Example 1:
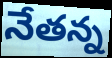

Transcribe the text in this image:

నేతన్న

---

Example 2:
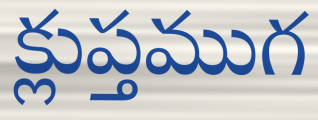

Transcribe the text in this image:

క్లుప్తముగ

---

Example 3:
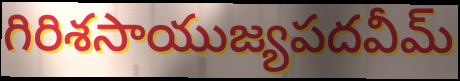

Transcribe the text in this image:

గిరిశసాయుజ్యపదవీమ్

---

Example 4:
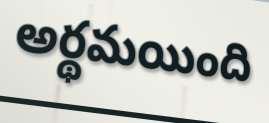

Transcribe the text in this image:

అర్థమయింది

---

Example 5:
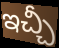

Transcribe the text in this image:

ఇచ్చీ